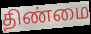
திண்மை